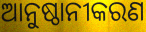
ଆନୁଷ୍ଠାନୀକରଣ